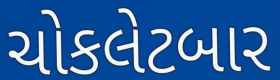
ચોકલેટબાર